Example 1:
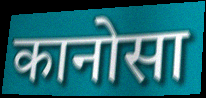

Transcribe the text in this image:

कानोसा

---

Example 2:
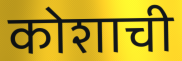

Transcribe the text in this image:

कोशाची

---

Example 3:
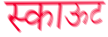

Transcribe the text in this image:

स्काऊट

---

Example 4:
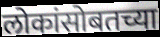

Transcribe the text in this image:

लोकांसोबतच्या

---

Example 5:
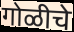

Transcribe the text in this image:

गोळीचे